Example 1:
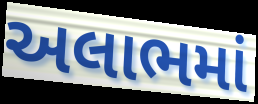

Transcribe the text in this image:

અલાભમાં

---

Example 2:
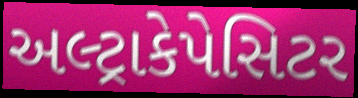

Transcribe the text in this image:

અલ્ટ્રાકેપેસિટર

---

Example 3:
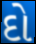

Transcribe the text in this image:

દો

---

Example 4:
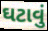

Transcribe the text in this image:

ઘટાવું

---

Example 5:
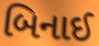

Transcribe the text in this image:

બિનાઈ